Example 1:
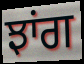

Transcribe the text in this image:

ਝਾਂਗ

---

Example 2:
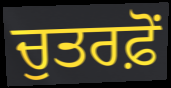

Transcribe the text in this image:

ਚੁਤਰਫ਼ੋਂ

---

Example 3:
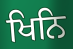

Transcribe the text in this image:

ਖਿਨਿ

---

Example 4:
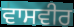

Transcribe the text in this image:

ਵਾਸਵੀਰ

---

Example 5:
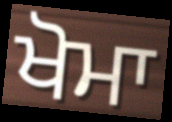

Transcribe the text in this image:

ਖੋਮਾ